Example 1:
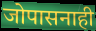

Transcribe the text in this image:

जोपासनाही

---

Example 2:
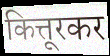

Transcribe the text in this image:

कित्तूरकर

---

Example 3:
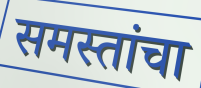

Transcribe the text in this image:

समस्तांचा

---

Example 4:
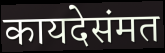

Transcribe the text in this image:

कायदेसंमत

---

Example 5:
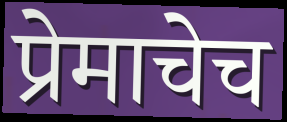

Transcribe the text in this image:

प्रेमाचेच